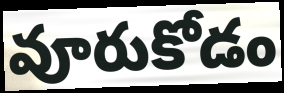
వూరుకోడం